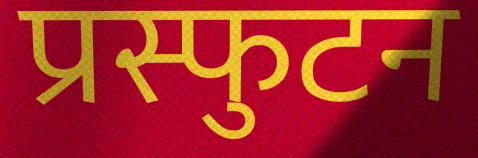
प्रस्‍फुटन